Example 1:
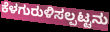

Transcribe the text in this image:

ಕೆಳಗುರುಳಿಸಲ್ಪಟ್ಟನು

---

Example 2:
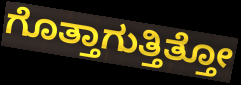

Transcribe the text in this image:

ಗೊತ್ತಾಗುತ್ತಿತ್ತೋ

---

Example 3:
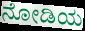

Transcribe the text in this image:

ನೋಡಿಯ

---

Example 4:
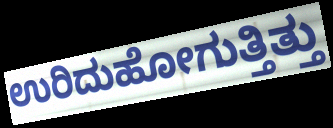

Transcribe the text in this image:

ಉರಿದುಹೋಗುತ್ತಿತ್ತು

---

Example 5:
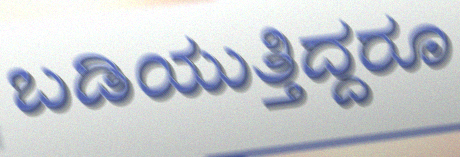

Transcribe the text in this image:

ಬಡಿಯುತ್ತಿದ್ದರೂ